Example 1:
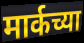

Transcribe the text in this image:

मार्कच्या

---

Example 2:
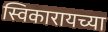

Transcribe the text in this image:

स्विकारायच्या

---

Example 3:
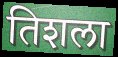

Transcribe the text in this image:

तिशला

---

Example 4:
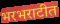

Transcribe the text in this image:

भरभराटीत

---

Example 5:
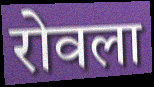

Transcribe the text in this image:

रोवला